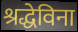
श्रद्धेविना